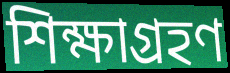
শিক্ষাগ্ৰহণ